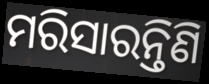
ମରିସାରନ୍ତିଣି